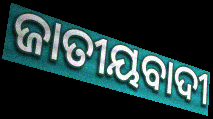
ଜାତୀୟବାଦୀ